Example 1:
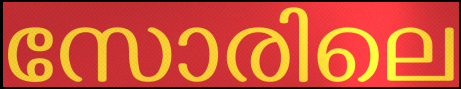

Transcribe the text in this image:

സോരിലെ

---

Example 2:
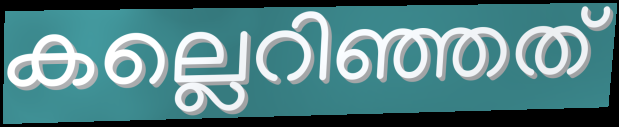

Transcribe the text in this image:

കല്ലെറിഞ്ഞത്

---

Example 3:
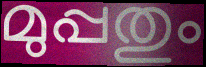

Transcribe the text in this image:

മുപ്പതും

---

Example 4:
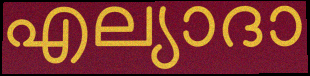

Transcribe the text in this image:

എല്യാദാ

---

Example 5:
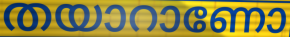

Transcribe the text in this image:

തയാറാണോ